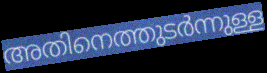
അതിനെത്തുടർന്നുള്ള